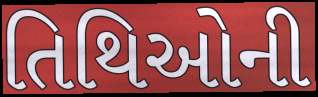
તિથિઓની